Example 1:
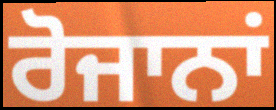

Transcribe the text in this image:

ਰੋਜਾਨਾਂ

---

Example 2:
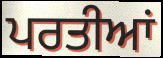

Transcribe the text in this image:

ਪਰਤੀਆਂ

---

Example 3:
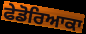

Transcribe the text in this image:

ਫੇਡੋਰਿਆਕਾ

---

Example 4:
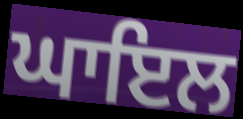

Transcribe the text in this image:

ਘਾਇਲ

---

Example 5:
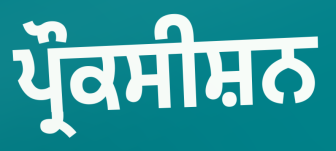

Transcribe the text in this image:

ਪ੍ਰੌਕਸੀਸ਼ਨ